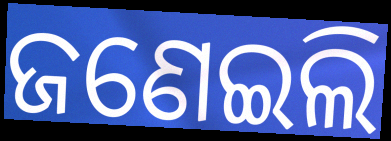
ଜଣେଇଲି